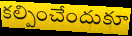
కల్పించేందుకూ